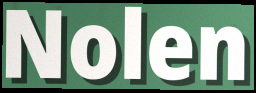
Nolen